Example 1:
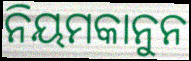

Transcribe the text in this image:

ନିୟମକାନୁନ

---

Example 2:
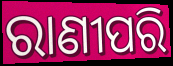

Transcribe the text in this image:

ରାଣୀପରି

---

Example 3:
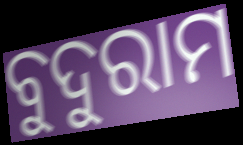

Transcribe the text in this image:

ବୁଦୁରାମ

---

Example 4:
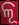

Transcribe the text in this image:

ଳୂ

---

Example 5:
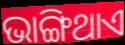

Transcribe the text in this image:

ଭାଙ୍ଗିଥାଏ